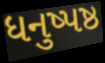
ધનુષ્પષ્ઠ